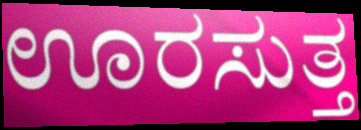
ಊರಸುತ್ತ